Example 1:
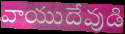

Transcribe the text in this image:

వాయుదేవుడి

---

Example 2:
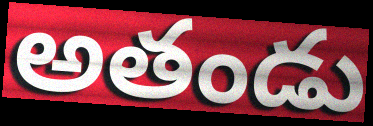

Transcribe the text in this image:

అతండు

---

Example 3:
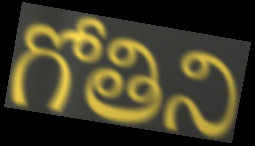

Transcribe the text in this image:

గోతిని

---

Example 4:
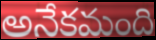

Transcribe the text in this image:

అనేకమంది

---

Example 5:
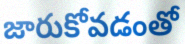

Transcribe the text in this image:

జారుకోవడంతో